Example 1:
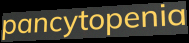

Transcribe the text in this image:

pancytopenia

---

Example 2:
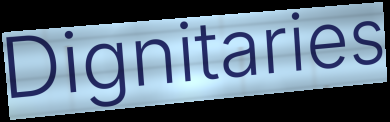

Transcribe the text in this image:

Dignitaries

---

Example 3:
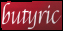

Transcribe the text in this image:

butyric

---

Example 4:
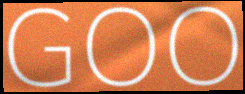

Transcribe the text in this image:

GOO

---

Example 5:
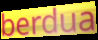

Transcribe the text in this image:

berdua